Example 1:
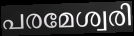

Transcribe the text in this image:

പരമേശ്വരി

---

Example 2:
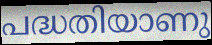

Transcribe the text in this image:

പദ്ധതിയാണു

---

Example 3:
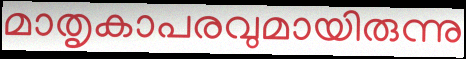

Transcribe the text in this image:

മാതൃകാപരവുമായിരുന്നു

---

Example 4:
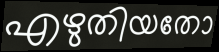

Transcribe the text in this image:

എഴുതിയതോ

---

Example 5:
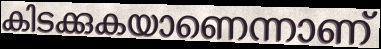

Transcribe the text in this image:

കിടക്കുകയാണെന്നാണ്